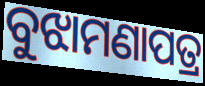
ବୁଝାମଣାପତ୍ର